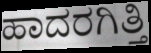
ಹಾದರಗಿತ್ತಿ